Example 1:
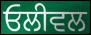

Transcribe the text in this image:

ਓਲੀਵਲ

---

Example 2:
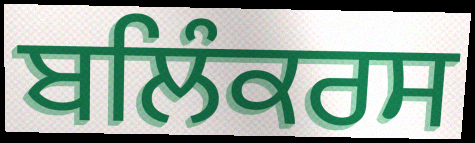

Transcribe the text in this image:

ਬਲਿੰਕਰਸ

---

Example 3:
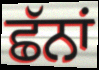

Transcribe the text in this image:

ਛੱਨਾਂ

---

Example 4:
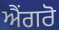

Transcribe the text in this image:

ਐਂਗਰੋ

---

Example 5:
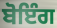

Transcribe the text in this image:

ਬੋਇੰਗ